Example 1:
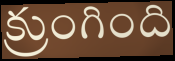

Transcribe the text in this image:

క్రుంగింది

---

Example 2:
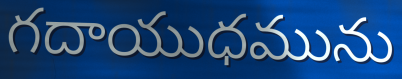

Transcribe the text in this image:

గదాయుధమును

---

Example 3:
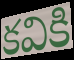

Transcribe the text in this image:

కవికి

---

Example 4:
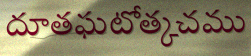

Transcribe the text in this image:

దూతఘటోత్కచము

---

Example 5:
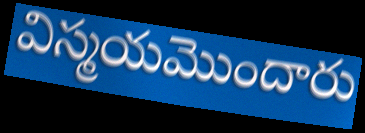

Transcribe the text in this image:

విస్మయమొందారు